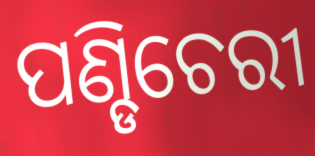
ପଣ୍ଡିଚେରୀ